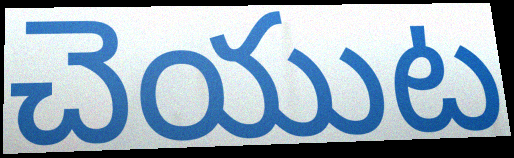
చెయుట